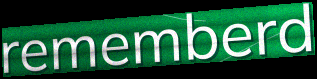
rememberd